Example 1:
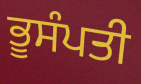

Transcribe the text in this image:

ਭੂਸੰਪਤੀ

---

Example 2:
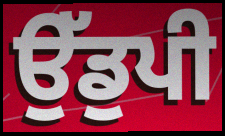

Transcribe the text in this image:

ਉੱਡੁਪੀ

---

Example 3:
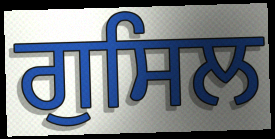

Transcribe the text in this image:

ਗੁਸਿਲ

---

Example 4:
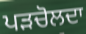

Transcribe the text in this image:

ਪੜਚੋਲਦਾ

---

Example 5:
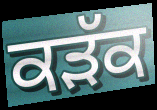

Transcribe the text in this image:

ਕੜੱਕ